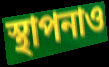
স্থাপনাও